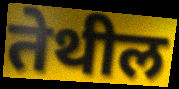
तेथील